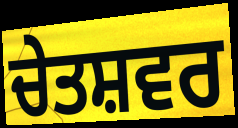
ਚੇਤਸ਼ਵਰ